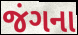
જંગના